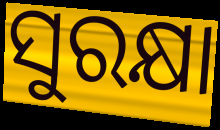
ସୁରକ୍ଷା